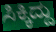
ಸಿಕ್ಕಿದ್ದು